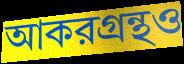
আকরগ্রন্থও